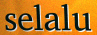
selalu